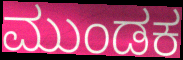
ಮುಂಡಕ